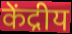
केंद्रीय